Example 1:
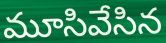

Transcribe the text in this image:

మూసివేసిన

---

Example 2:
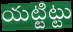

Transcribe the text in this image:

యట్టిట్టు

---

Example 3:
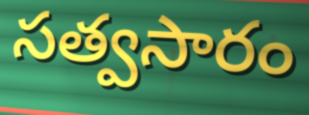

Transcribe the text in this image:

సత్వసారం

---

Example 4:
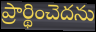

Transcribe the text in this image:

ప్రార్థించెదను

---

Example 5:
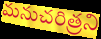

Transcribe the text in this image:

మనుచరిత్రని